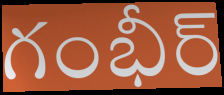
గంభీర్